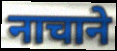
नाचाने